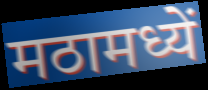
मठामध्यें